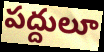
పద్దులూ